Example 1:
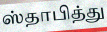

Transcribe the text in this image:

ஸ்தாபித்து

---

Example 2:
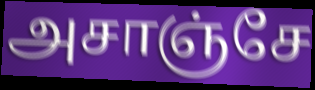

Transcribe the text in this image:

அசாஞ்சே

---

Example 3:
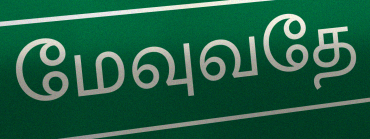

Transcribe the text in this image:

மேவுவதே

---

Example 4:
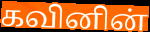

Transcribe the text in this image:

கவினின்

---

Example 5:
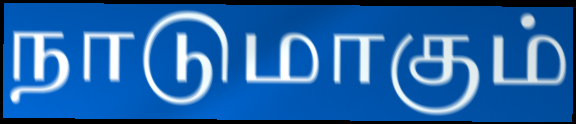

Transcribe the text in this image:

நாடுமாகும்